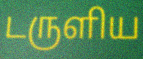
டருளிய